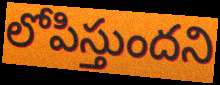
లోపిస్తుందని